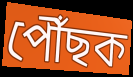
পৌঁছক